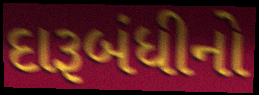
દારૂબંધીનો